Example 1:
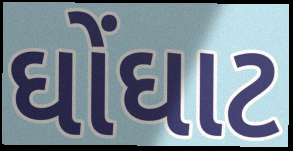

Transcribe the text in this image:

ઘોંઘાટ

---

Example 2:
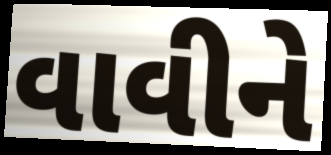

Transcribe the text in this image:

વાવીને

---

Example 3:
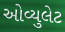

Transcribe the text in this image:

ઓવ્યુલેટ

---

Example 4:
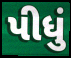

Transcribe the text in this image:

પીધું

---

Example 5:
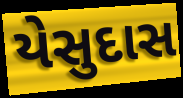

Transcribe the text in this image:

યેસુદાસ